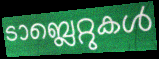
ടാബ്ലെറ്റുകൾ